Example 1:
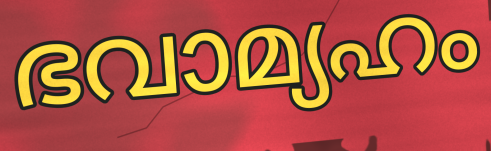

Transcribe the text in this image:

ഭവാമ്യഹം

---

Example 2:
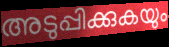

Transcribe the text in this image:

അടുപ്പിക്കുകയും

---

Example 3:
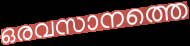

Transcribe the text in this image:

ഒരവസാനത്തെ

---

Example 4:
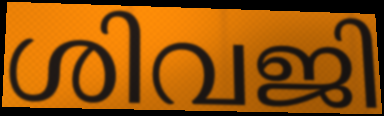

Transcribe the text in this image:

ശിവജി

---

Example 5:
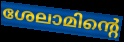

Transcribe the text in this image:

ശേലാമിന്റെ